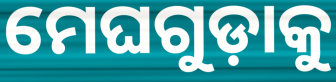
ମେଘଗୁଡ଼ାକୁ